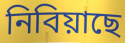
নিবিয়াছে